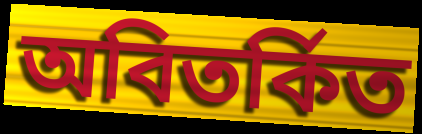
অবিতর্কিত